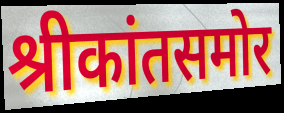
श्रीकांतसमोर